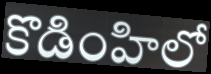
కొడింహిలో